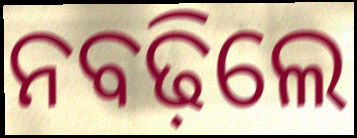
ନବଢ଼ିଲେ